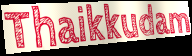
Thaikkudam